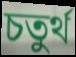
চতুর্থ